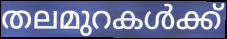
തലമുറകൾക്ക്